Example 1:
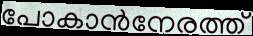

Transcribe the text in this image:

പോകാൻനേരത്ത്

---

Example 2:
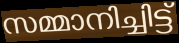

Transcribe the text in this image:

സമ്മാനിച്ചിട്ട്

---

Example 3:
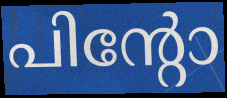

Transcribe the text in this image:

പിന്റോ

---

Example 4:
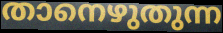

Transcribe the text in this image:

താനെഴുതുന്ന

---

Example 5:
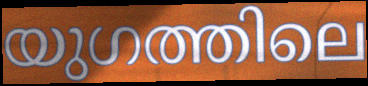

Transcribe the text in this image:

യുഗത്തിലെ